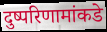
दुष्परिणामांकडे